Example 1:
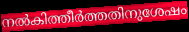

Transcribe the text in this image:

നൽകിത്തീർത്തതിനുശേഷം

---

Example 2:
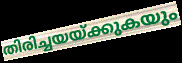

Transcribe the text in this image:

തിരിച്ചയയ്ക്കുകയും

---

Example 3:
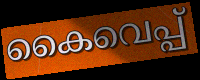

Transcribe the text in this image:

കൈവെപ്പ്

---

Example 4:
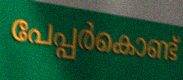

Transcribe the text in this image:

പേപ്പർകൊണ്ട്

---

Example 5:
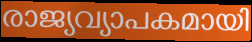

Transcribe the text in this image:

രാജ്യവ്യാപകമായി